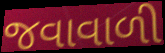
જવાવાળી